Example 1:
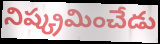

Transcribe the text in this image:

నిష్క్రమించేడు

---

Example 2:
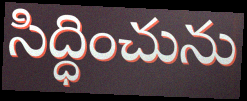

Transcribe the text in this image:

సిద్ధించును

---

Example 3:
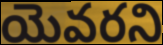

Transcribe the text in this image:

యెవరని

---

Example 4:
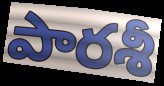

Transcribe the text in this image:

పారశీ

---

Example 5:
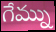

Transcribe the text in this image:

గేమ్ను